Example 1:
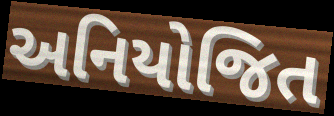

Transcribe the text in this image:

અનિયોજિત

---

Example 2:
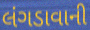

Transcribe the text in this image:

લંગડાવાની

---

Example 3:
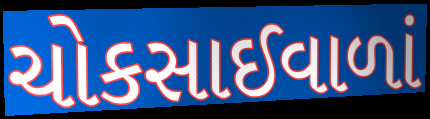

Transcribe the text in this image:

ચોકસાઈવાળાં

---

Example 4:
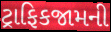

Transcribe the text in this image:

ટ્રાફિકજામની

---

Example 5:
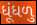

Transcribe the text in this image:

ધૂંધળુ